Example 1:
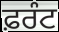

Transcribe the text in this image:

ਫ਼ਰੰਟ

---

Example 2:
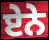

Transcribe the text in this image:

ਏੇਨੇ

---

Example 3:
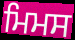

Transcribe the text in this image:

ਮਿਮਸ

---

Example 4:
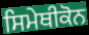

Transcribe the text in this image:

ਸਿਮੇਥੀਕੋਨ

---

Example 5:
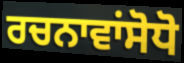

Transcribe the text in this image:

ਰਚਨਾਵਾਂਸੋਧੋ